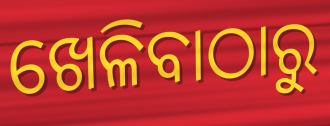
ଖେଳିବାଠାରୁ